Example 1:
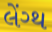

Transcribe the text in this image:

લેંગ્થ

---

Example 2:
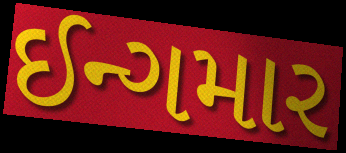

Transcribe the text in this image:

ઈન્ગમાર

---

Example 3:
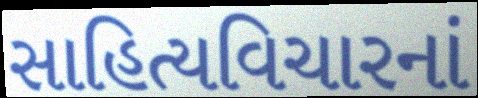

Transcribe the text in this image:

સાહિત્યવિચારનાં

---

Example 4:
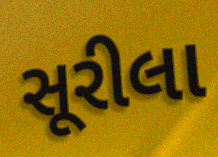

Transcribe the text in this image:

સૂરીલા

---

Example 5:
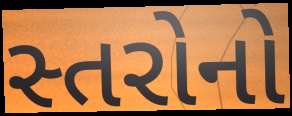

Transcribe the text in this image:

સ્તરોનો